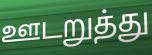
ஊடறுத்து